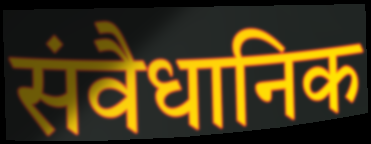
संवैधानिक